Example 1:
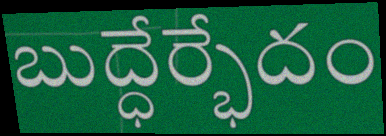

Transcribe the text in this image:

బుద్ధేర్భేదం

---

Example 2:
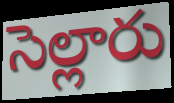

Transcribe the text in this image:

సెల్లారు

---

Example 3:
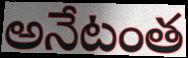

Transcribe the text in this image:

అనేటంత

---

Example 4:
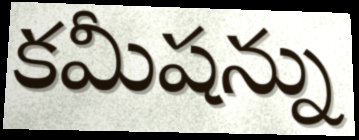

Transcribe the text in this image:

కమీషన్ను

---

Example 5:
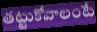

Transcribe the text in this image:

తట్టుకోవాలంటే